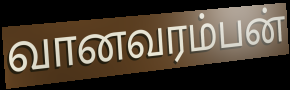
வானவரம்பன்